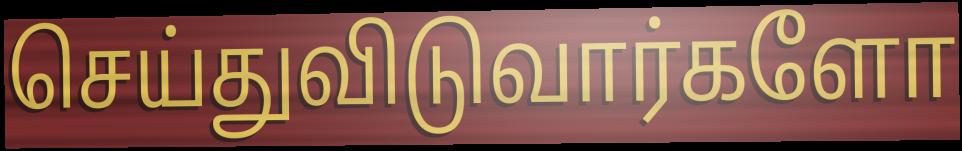
செய்துவிடுவார்களோ